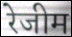
रेजीम